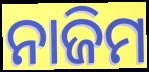
ନାଜିମ